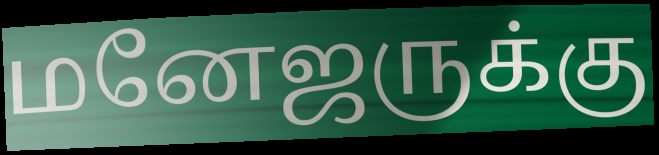
மனேஜருக்கு